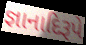
જ્ઞાનાદિરૂપે